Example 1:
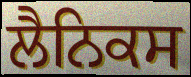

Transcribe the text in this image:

ਲੈਨਿਕਸ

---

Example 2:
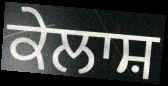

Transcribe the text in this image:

ਕੇਲਾਸ਼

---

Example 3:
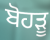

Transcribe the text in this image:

ਬੋਹੜੂ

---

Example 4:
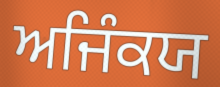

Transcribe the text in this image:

ਅਜਿੰਕਯ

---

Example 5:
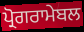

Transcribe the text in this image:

ਪ੍ਰੋਗਰਾਮੇਬਲ